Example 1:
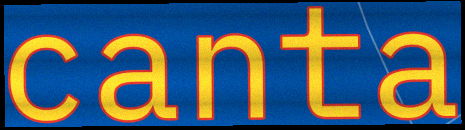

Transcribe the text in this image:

canta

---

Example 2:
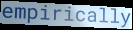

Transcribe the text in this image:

empirically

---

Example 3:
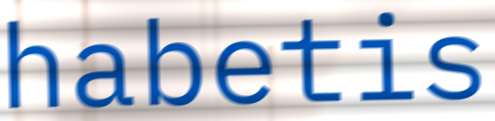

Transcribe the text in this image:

habetis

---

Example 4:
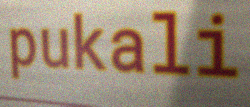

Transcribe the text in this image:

pukali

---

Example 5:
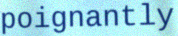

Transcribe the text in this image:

poignantly